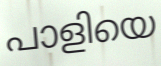
പാളിയെ